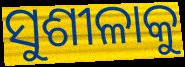
ସୁଶୀଳାକୁ